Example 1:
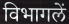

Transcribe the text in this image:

विभागलें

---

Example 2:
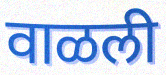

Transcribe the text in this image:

वाळली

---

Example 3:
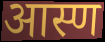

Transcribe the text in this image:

आस्ण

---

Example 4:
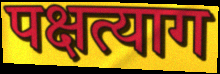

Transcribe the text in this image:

पक्षत्याग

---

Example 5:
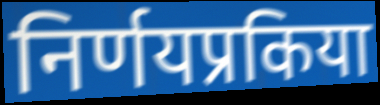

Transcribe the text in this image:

निर्णयप्रकिया